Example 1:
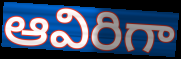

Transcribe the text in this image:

ఆవిరిగా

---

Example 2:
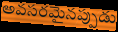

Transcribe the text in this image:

అవసరమైనప్పుడు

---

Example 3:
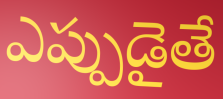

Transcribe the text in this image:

ఎప్పుడైతే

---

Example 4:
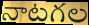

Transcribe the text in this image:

నాటగల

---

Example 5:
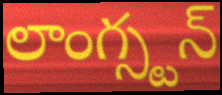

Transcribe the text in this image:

లాంగ్స్టన్